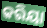
କରିୟା